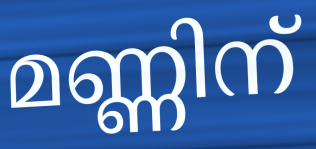
മണ്ണിന്